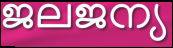
ജലജന്യ